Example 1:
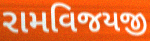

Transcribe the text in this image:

રામવિજયજી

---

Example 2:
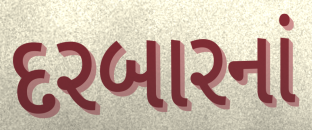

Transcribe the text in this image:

દરબારનાં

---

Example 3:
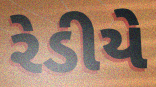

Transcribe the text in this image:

રેડીયે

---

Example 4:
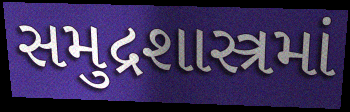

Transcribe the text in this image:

સમુદ્રશાસ્ત્રમાં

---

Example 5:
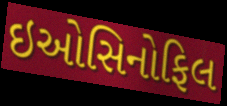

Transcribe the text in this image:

ઇઓસિનોફિલ